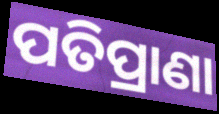
ପତିପ୍ରାଣା